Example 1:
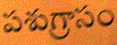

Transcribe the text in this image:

పశుగ్రాసం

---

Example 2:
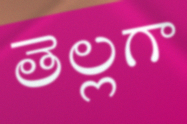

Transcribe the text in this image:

తెల్లగా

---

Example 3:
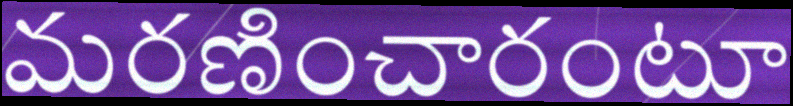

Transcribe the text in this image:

మరణించారంటూ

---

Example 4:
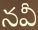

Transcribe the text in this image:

నవీ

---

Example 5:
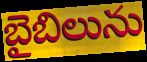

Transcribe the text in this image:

బైబిలును